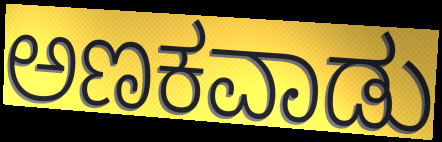
ಅಣಕವಾಡು